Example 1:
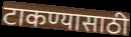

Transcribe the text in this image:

टाकण्यासाठी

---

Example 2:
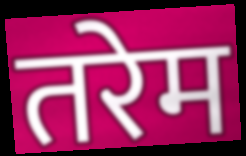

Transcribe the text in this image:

तरेम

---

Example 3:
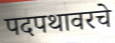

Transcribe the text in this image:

पदपथावरचे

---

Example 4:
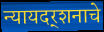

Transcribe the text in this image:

न्यायदर्शनाचे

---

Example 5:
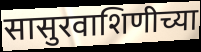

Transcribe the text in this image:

सासुरवाशिणीच्या